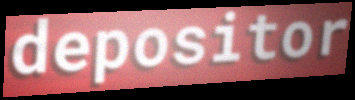
depositor